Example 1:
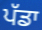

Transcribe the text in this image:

ਪੱਡਾ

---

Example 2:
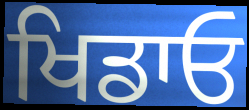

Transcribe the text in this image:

ਖਿਡਾਓ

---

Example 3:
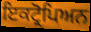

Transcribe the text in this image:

ਇਕਟ੍ਰੋਪਿਅਨ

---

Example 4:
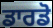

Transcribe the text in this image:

ਡਾਰਡੋ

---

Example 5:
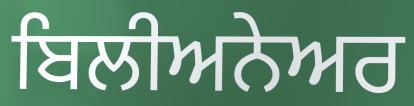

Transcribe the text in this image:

ਬਿਲੀਅਨੇਅਰ